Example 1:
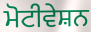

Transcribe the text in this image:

ਮੋਟੀਵੇਸ਼ਨ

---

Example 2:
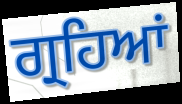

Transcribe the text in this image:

ਗ੍ਰਹਿਆਂ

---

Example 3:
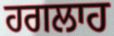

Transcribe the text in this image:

ਹਗਲਾਹ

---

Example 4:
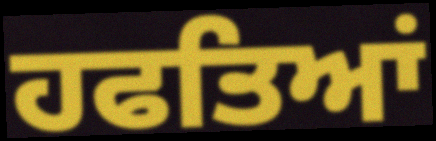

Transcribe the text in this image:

ਹਫਤਿਆਂ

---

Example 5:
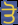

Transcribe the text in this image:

ਤੋ